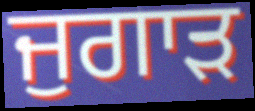
ਜੁਗਾੜ